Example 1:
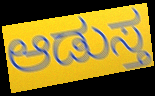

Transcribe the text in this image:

ಆಡುಸ್ತ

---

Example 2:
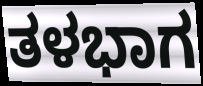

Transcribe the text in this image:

ತಳಭಾಗ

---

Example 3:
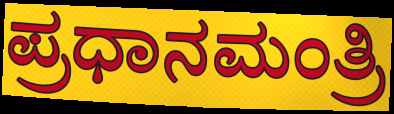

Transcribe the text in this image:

ಪ್ರಧಾನಮಂತ್ರಿ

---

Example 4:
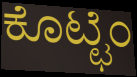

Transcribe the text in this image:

ಕೊಟ್ಟೆಂ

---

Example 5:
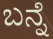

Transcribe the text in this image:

ಬನ್ನೆ